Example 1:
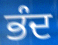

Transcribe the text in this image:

ਭੰਦ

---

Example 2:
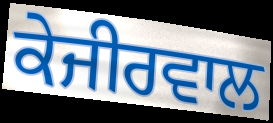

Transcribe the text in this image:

ਕੇਜੀਰਵਾਲ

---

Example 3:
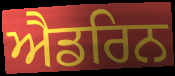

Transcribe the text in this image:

ਐਡਰਿਨ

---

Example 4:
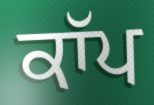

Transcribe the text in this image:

ਕਾੱਪ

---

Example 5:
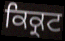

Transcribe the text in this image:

ਕਿਕ੍ਰਟ